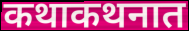
कथाकथनात